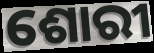
ଶୋରୀ